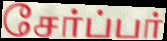
சேர்ப்பர்